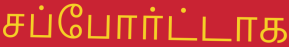
சப்போர்ட்டாக